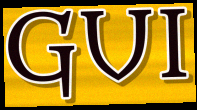
GUI